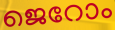
ജെറോം